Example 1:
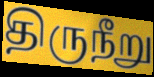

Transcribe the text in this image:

திருநீறு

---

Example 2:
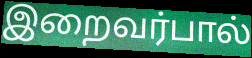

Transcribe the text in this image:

இறைவர்பால்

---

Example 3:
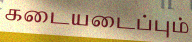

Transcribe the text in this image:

கடையடைப்பும்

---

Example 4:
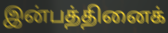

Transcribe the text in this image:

இன்பத்தினைக்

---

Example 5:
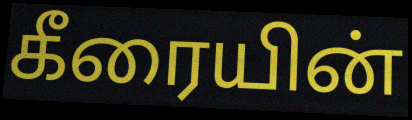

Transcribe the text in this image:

கீரையின்